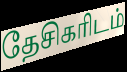
தேசிகரிடம்